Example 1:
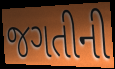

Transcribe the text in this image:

જગતીની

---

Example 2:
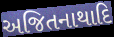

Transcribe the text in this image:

અજિતનાથાદિ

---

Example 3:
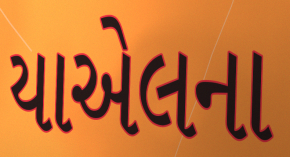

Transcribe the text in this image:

યાએલના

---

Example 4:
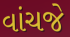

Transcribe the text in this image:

વાંચજે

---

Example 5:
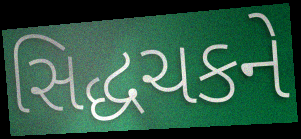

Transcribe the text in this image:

સિદ્ધચકને